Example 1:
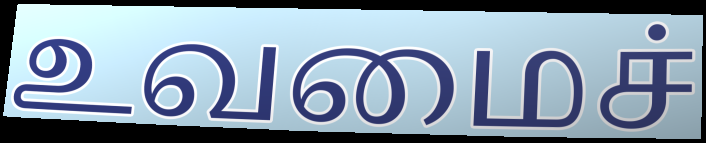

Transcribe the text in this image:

உவமைச்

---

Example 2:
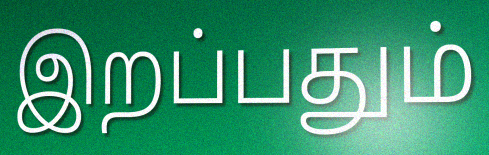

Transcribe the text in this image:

இறப்பதும்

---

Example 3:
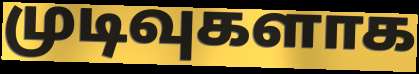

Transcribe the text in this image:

முடிவுகளாக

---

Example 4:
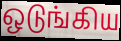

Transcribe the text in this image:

ஒடுங்கிய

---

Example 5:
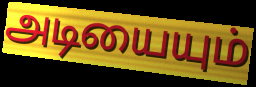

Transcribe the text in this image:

அடியையும்